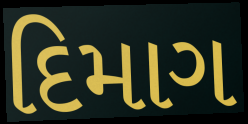
દિમાગ